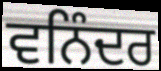
ਵਨਿੰਦਰ